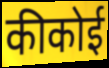
कीकोई